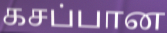
கசப்பான